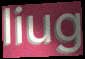
liug